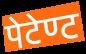
पेटेण्ट